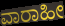
ವಾರಾಹೀ